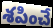
శపించే